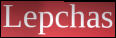
Lepchas